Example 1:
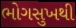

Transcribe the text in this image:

ભોગસુખથી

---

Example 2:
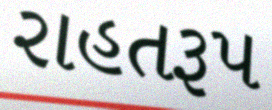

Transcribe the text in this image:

રાહતરૂપ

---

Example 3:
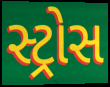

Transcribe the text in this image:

સ્ટ્રોસ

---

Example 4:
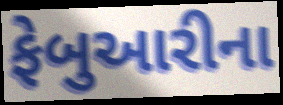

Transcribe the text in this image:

ફેબુઆરીના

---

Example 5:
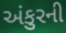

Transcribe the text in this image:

અંકુરની